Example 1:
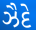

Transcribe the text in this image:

ઝૈદે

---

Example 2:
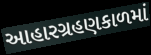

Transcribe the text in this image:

આહારગ્રહણકાળમાં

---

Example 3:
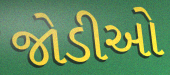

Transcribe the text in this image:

જોડીઓ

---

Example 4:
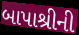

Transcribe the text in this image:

બાપાશ્રીની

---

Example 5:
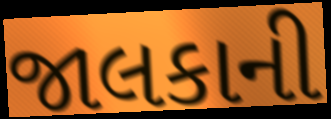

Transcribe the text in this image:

જાલકાની